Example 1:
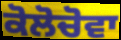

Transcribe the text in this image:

ਕੋਲੋਚੋਵਾ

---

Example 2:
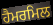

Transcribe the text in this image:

ਹੈਮਰਮਿਲ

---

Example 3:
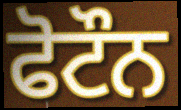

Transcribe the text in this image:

ਫੋਟੌਨ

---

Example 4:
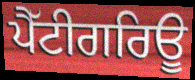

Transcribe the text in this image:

ਪੈੱਟੀਗਰਿਊ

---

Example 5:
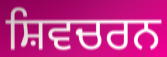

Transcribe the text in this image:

ਸ਼ਿਵਚਰਨ